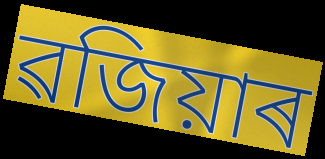
ৱজিয়াৰ